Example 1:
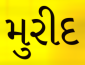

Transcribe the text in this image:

મુરીદ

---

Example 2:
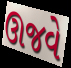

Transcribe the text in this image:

ઊજવે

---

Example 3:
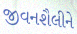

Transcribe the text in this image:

જીવનશૈલીને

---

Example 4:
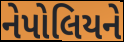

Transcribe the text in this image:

નેપોલિયને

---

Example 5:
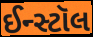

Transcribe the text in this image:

ઈન્સ્ટૉલ